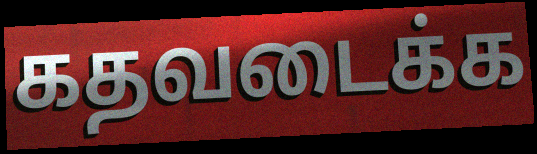
கதவடைக்க